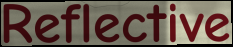
Reflective